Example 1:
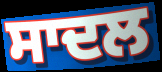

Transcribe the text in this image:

ਸਾਦਲ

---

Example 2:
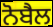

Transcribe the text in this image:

ਨੋਬੈਲ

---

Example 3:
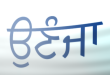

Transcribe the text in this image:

ਉਣੰਜਾ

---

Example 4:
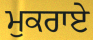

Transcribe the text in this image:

ਮੁਕਰਾਏ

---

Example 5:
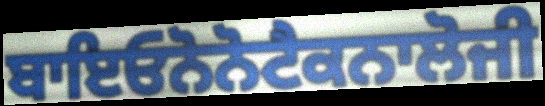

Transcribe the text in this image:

ਬਾਇਓਨੋਨੋਟੈਕਨਾਲੋਜੀ